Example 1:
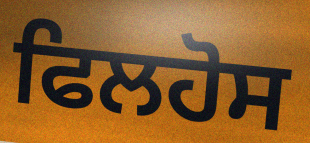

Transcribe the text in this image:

ਫਿਲਹੋਸ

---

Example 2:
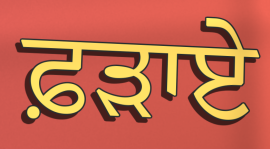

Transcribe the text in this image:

ਫ਼ੜਾਏ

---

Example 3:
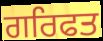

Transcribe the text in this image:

ਗਰਿਫਤ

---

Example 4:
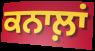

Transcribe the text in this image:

ਕਨਾਲ਼ਾਂ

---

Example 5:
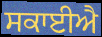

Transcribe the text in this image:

ਸਕਾਈਐ